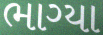
ભાગ્યા